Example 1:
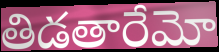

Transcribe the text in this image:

తిడతారేమో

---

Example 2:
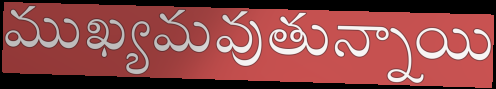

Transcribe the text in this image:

ముఖ్యమవుతున్నాయి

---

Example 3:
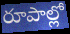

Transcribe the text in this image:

రూపాల్లో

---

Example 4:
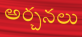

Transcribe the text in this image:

అర్చనలు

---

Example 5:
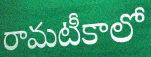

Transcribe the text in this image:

రామటీకాలో